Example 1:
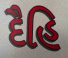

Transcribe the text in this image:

દૈહિ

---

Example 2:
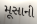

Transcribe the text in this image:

મૂસાની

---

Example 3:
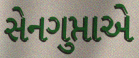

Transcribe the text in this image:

સેનગુપ્તાએ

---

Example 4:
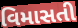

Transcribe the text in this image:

વિમાસતી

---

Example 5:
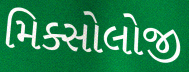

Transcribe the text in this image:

મિક્સોલોજી